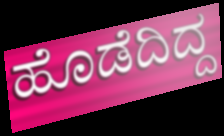
ಹೊಡೆದಿದ್ದ